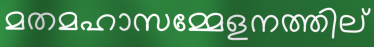
മതമഹാസമ്മേളനത്തില്